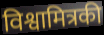
विश्वामित्रकी